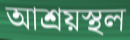
আশ্ৰয়স্থল